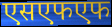
एसएफएफ